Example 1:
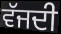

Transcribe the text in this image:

ਵੱਜਦੀ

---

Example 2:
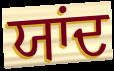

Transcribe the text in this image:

ਯਾਂਦ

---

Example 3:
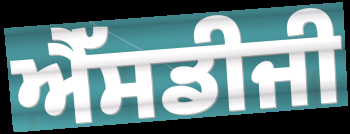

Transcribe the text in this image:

ਐੱਸਡੀਜੀ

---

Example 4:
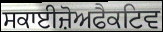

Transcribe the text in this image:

ਸਕਾਈਜ਼ੋਅਫੈਕਟਿਵ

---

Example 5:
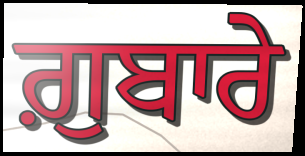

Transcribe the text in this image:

ਗ਼ੁਬਾਰੇ